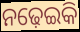
ନଢ଼େଇକି